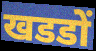
खडडों